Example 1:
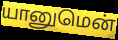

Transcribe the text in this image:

யானுமென்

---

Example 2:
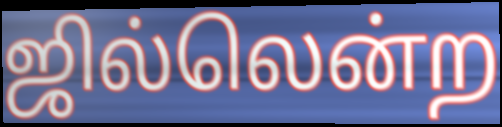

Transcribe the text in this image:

ஜில்லென்ற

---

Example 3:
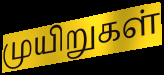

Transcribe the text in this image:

முயிறுகள்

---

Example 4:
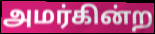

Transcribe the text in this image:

அமர்கின்ற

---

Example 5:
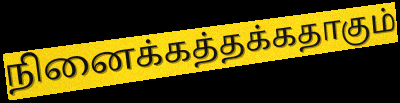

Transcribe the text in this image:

நினைக்கத்தக்கதாகும்